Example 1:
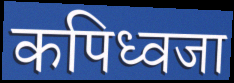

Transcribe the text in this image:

कपिध्वजा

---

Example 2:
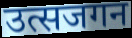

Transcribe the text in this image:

उत्सजगन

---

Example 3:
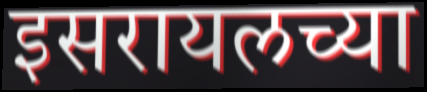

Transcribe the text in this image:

इसरायलच्या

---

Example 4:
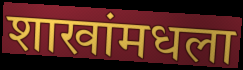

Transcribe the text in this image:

शाखांमधला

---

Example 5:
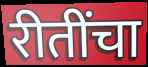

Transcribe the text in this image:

रीतींचा